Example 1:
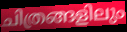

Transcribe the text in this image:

ചിത്രങ്ങളിലും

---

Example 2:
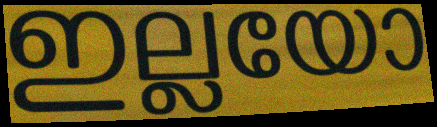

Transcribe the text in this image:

ഇല്ലയോ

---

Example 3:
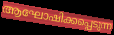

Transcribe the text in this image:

ആഘോഷിക്കപ്പെടുന്ന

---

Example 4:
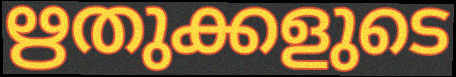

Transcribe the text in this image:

ഋതുക്കളുടെ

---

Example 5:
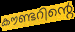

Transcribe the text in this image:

കൗണ്ടറിന്റെ